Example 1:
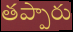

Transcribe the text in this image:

తప్పారు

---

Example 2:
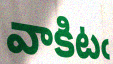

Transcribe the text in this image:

వాకిటఁ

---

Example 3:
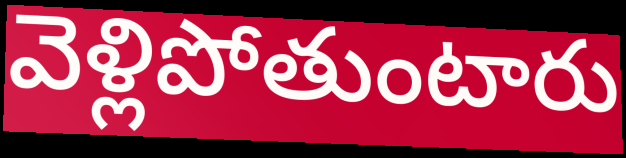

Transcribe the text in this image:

వెళ్లిపోతుంటారు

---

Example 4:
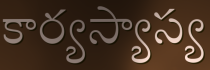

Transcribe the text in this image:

కార్యస్యాస్య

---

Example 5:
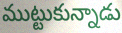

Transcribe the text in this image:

ముట్టుకున్నాడు